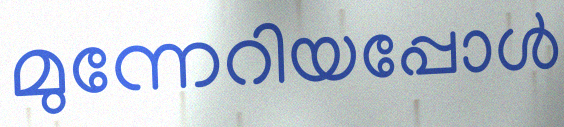
മുന്നേറിയപ്പോൾ